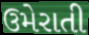
ઉમેરાતી